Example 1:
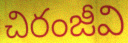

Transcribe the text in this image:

చిరంజీవి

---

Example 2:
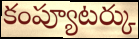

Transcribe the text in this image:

కంప్యూటర్కు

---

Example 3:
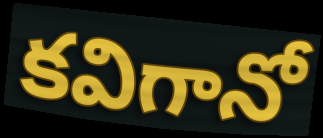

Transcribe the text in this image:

కవిగానో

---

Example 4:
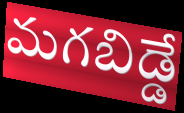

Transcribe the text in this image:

మగబిడ్డే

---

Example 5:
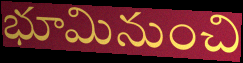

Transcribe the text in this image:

భూమినుంచి